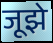
जूझे